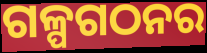
ଗଳ୍ପଗଠନର